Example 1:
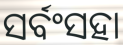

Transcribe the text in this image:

ସର୍ବଂସହା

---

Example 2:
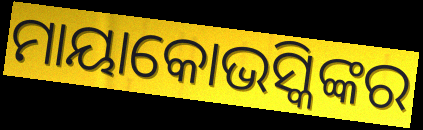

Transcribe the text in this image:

ମାୟାକୋଭସ୍କିଙ୍କର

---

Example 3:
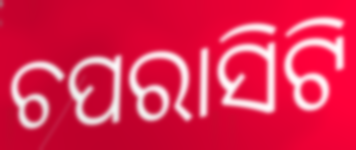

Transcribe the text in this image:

ଚପରାସିଟି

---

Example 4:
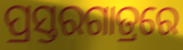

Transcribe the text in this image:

ପ୍ରସ୍ତରଗାତ୍ରରେ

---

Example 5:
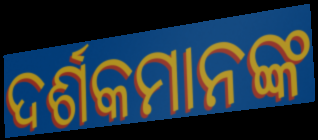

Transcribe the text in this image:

ଦର୍ଶକମାନଙ୍କ